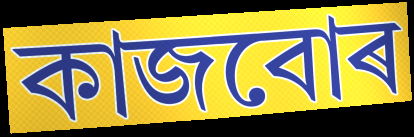
কাজবোৰ